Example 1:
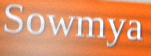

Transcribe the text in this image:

Sowmya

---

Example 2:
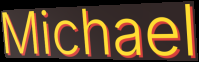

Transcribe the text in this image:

Michael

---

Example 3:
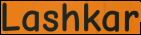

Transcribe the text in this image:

Lashkar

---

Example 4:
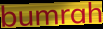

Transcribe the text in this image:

bumrah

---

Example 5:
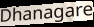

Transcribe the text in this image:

Dhanagare